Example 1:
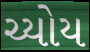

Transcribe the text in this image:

ચ્યોય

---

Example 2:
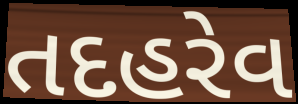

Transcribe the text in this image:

તદહરેવ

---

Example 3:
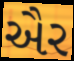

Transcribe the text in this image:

ઐર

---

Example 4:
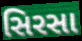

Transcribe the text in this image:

સિરસા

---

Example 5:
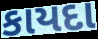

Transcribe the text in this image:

કાયદા